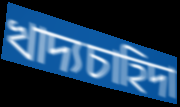
খাদ্যচাহিদা